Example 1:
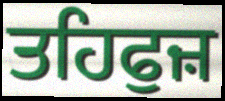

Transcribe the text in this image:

ਤਹਿਫੁਜ਼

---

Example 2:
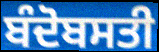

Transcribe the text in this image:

ਬੰਦੋਬਸਤੀ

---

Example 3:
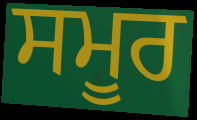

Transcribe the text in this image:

ਸਮੂਰ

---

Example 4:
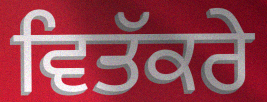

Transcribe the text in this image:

ਵਿਤੱਕਰੇ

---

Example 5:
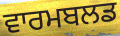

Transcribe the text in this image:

ਵਾਰਮਬਲਡ